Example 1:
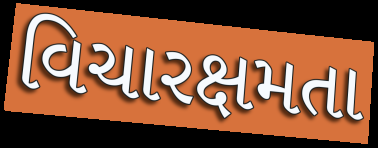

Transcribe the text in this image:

વિચારક્ષમતા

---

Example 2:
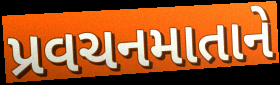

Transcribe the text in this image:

પ્રવચનમાતાને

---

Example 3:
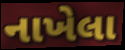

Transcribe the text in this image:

નાખેલા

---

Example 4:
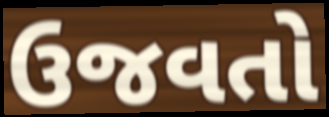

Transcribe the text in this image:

ઉજવતો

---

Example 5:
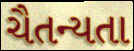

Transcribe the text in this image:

ચૈતન્યતા